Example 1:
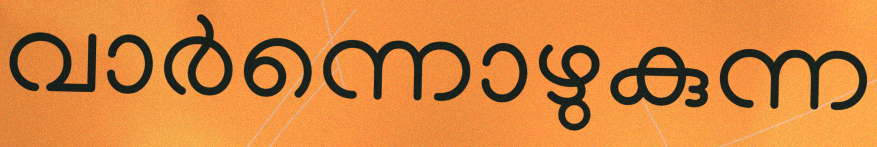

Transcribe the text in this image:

വാർന്നൊഴുകുന്ന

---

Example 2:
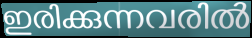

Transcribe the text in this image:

ഇരിക്കുന്നവരിൽ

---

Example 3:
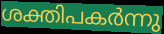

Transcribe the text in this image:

ശക്തിപകർന്നു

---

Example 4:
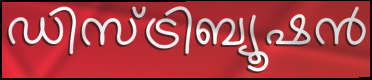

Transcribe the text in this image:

ഡിസ്ട്രിബ്യൂഷൻ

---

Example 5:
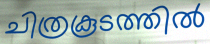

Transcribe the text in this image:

ചിത്രകൂടത്തിൽ